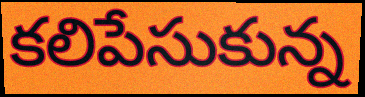
కలిపేసుకున్న